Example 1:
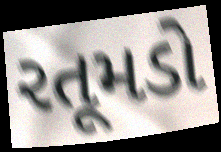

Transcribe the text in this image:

રતૂમડો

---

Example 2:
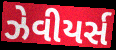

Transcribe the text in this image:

ઝેવીયર્સ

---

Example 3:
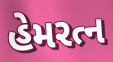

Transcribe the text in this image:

હેમરત્ન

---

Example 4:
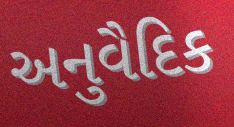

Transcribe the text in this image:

અનુવૈદિક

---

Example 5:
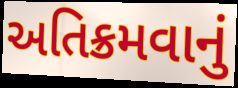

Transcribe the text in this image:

અતિક્રમવાનું